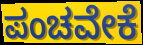
ಪಂಚವೇಕೆ